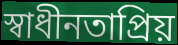
স্বাধীনতাপ্রিয়